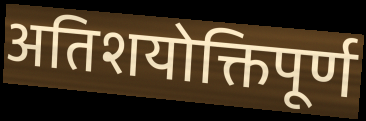
अतिशयोक्तिपूर्ण